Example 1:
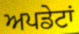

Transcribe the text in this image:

ਅਪਡੇਟਾਂ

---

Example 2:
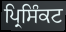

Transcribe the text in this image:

ਪ੍ਰਿਸਿੰਕਟ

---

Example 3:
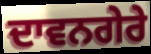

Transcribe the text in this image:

ਦਾਵਨਗੇਰੇ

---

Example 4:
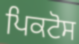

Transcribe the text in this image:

ਪਿਕਟੋਸ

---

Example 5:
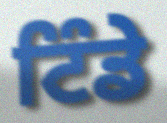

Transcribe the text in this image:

ਟਿੰਡੇ